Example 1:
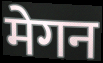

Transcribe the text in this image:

मेगन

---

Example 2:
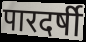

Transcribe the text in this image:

पारदर्षी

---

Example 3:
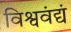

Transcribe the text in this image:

विश्ववंद्यं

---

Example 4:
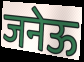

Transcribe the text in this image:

जनेऊ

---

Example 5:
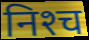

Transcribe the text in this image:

निश्च